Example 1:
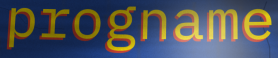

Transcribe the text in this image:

progname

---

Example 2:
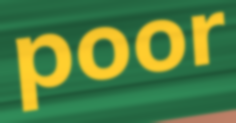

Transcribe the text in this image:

poor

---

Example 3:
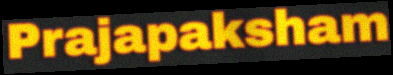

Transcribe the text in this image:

Prajapaksham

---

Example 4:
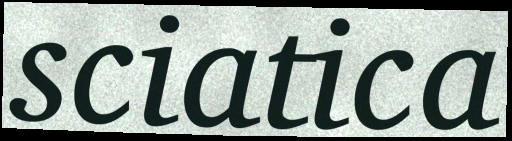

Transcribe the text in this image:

sciatica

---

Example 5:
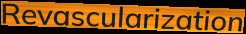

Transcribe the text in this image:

Revascularization